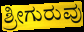
ಶ್ರೀಗುರುವು